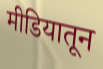
मीडियातून